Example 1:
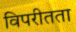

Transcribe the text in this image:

विपरीतता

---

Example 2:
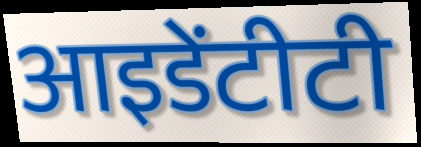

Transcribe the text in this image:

आइडेंटीटी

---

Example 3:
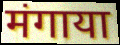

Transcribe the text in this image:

मंगाया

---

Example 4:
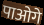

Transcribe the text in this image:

पाओगे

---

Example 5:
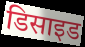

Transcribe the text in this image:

डिसाइड